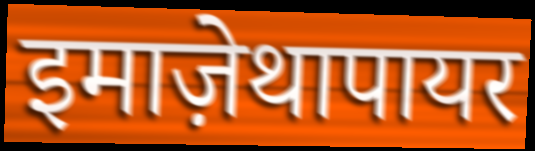
इमाज़ेथापायर